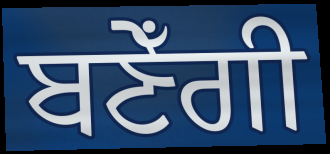
ਬਣੇਁਗੀ